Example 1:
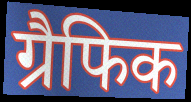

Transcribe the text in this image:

ग्रैफिक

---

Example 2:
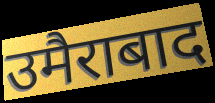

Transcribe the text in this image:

उमैराबाद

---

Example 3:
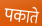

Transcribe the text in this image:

पकाते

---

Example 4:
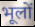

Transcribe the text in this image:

भूलों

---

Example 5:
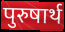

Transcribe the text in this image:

पुरुषार्थ